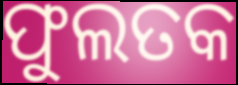
ଫୁଲତକ